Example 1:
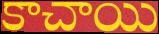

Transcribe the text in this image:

కాచాయి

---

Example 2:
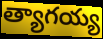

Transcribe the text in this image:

త్యాగయ్య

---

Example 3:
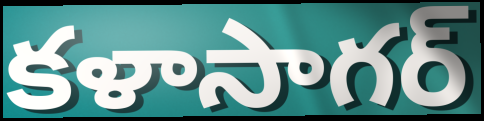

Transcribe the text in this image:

కళాసాగర్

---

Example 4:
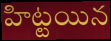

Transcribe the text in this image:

హిట్టయిన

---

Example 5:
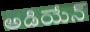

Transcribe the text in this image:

అడియేన్